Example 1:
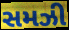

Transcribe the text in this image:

સમઝી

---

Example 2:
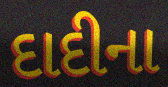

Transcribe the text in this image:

દાદીના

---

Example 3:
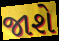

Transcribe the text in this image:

જાશે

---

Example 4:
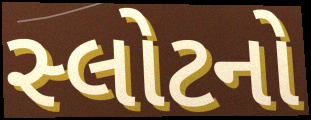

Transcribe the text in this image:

સ્લોટનો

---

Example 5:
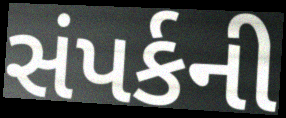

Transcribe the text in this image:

સંપર્કની